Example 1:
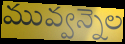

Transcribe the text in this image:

మువ్వన్నెల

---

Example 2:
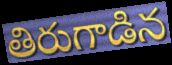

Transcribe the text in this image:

తిరుగాడిన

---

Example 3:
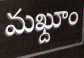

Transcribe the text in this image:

మఖ్దూం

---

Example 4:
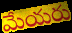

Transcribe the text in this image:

మేయరు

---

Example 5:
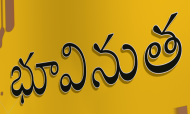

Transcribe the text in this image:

భూవినుత